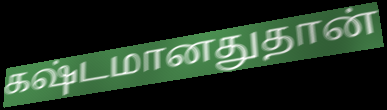
கஷ்டமானதுதான்